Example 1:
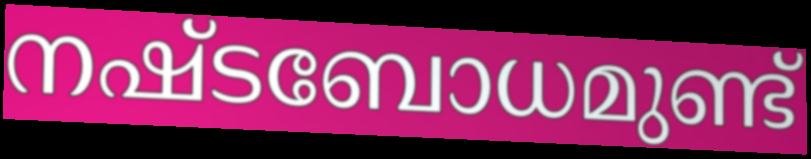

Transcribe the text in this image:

നഷ്ടബോധമുണ്ട്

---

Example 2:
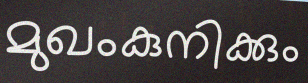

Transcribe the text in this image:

മുഖംകുനിക്കും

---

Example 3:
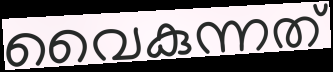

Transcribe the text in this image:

വൈകുന്നത്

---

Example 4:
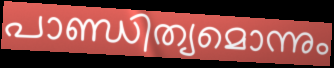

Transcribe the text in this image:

പാണ്ഡിത്യമൊന്നും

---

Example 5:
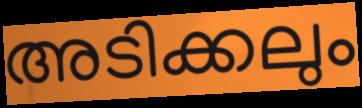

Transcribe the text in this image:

അടിക്കലും